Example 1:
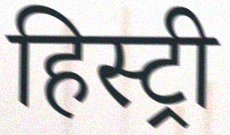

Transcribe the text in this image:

हिस्ट्री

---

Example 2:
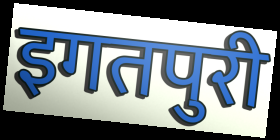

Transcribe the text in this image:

इगतपुरी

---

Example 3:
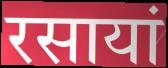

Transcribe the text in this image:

रसायां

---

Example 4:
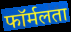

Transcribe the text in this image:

फॉर्मलता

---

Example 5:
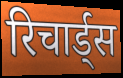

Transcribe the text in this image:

रिचार्ड्स